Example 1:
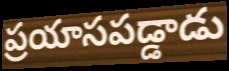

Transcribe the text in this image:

ప్రయాసపడ్డాడు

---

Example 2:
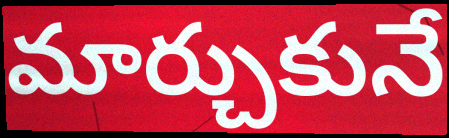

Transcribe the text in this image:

మార్చుకునే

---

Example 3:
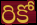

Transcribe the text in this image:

రికో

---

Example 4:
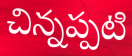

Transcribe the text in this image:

చిన్నప్పటి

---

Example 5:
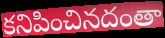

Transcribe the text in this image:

కనిపించినదంతా